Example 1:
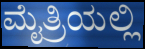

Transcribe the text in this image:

ಮೈತ್ರಿಯಲ್ಲಿ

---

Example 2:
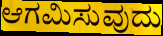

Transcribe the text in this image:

ಆಗಮಿಸುವುದು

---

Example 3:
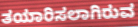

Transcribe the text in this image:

ತಯಾರಿಸಲಾಗಿರುವ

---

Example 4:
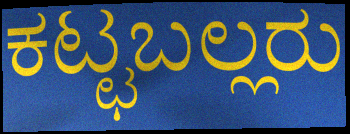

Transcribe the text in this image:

ಕಟ್ಟಬಲ್ಲರು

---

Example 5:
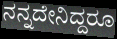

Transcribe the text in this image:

ನನ್ನದೇನಿದ್ದರೂ